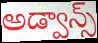
అడ్వాన్స్